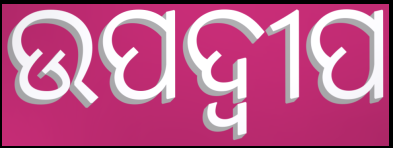
ଉପଦ୍ବୀପ